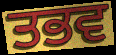
ਤਭਵ